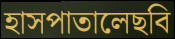
হাসপাতালেছবি